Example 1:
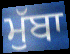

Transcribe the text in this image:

ਮੁੱਬਾ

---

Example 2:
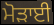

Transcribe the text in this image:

ਮੋੜਾਈ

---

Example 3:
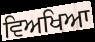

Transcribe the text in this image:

ਵਿਅਖਿਆ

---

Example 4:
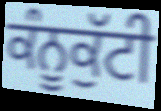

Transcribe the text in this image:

ਕੰਨੂਕੁੱਟੀ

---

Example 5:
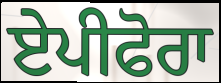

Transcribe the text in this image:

ਏਪੀਫੋਰਾ